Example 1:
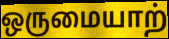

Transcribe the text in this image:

ஒருமையாற்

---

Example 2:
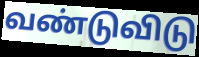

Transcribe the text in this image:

வண்டுவிடு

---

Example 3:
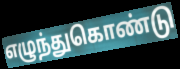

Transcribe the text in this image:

எழுந்துகொண்டு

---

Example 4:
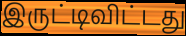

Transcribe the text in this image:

இருட்டிவிட்டது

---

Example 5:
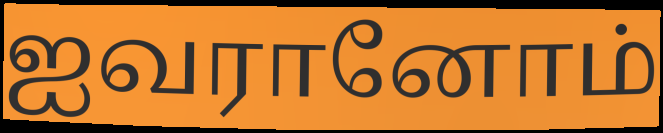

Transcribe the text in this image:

ஐவரானோம்